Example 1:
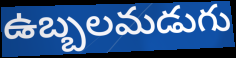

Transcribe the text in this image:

ఉబ్బలమడుగు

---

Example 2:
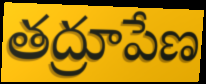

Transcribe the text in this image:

తద్రూపేణ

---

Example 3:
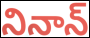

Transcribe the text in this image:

నినాన్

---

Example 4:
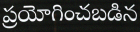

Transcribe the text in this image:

ప్రయోగించబడిన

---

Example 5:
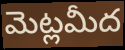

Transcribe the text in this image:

మెట్లమీద